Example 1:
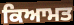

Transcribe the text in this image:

ਕਿਆਮਤ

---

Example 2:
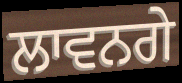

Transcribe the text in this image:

ਲਾਵਨਗੇ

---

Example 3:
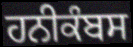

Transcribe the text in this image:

ਹਨੀਕੰਬਸ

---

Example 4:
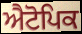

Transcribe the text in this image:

ਐਟੋਪਿਕ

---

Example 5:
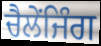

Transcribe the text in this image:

ਚੈਲੇਂਜਿੰਗ